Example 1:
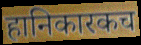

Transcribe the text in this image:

हानिकारकच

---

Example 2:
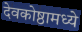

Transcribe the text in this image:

देवकोष्ठामध्ये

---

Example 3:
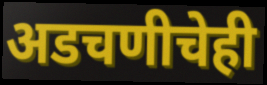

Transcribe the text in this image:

अडचणीचेही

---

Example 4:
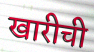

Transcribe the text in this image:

खारीची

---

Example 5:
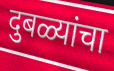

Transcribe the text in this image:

दुबळ्यांचा